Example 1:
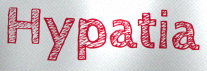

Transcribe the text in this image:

Hypatia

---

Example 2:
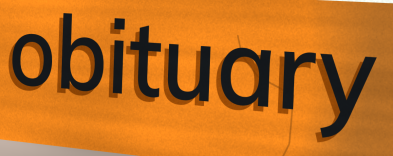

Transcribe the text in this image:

obituary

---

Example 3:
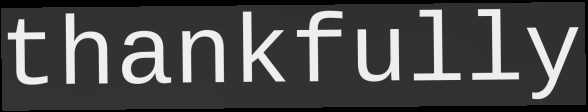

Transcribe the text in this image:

thankfully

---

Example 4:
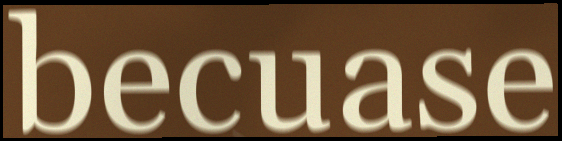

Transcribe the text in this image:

becuase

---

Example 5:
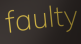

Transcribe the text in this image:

faulty